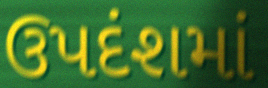
ઉપદંશમાં